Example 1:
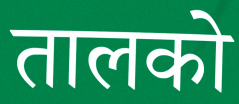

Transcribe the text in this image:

तालको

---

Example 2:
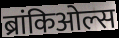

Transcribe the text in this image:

ब्रांकिओल्स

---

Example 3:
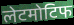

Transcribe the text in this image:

लेटमोटिफ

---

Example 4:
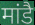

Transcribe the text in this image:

मांडै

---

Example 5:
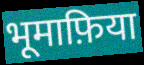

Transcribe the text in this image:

भूमाफ़िया